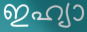
ഇഹ്യാ